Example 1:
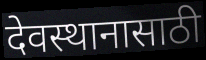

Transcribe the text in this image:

देवस्थानासाठी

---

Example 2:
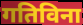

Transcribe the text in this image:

गतिविना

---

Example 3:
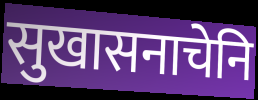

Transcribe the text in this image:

सुखासनाचेनि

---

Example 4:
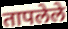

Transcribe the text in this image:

तापलेले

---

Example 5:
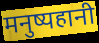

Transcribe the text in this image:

मनुष्यहानी